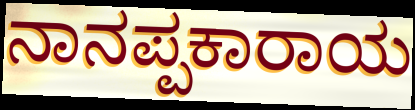
ನಾನಪ್ಪಕಾರಾಯ